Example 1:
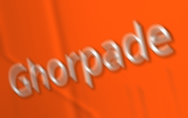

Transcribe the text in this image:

Ghorpade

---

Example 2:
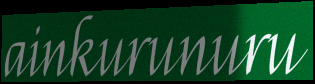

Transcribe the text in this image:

ainkurunuru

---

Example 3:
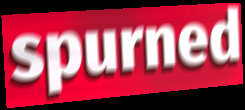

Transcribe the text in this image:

spurned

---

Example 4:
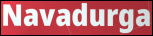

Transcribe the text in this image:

Navadurga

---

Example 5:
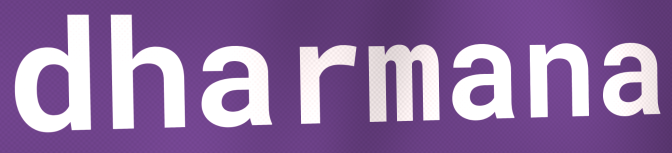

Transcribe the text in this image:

dharmana